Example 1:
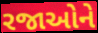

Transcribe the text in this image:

રજાઓને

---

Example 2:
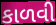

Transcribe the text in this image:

કાળવી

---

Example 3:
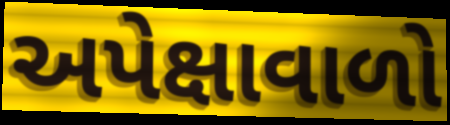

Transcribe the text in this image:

અપેક્ષાવાળો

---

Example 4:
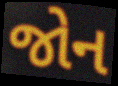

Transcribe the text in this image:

જોન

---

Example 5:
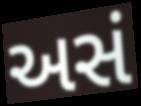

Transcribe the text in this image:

અસં